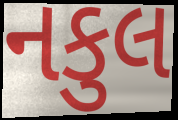
નકુલ